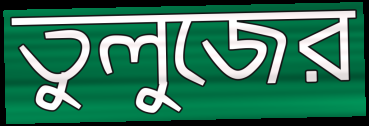
তুলুজের